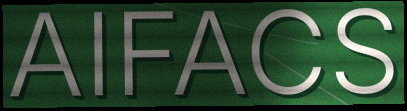
AIFACS